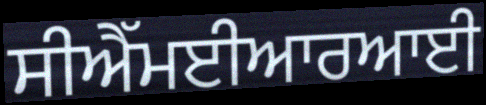
ਸੀਐੱਮਈਆਰਆਈ